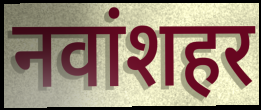
नवांशहर